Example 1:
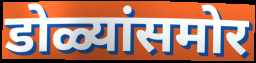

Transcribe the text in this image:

डोळ्यांसमोर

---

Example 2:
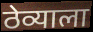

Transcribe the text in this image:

ठेव्याला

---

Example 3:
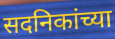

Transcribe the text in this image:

सदनिकांच्या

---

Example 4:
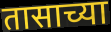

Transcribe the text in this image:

तासाच्या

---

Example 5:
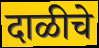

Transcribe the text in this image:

दाळीचे